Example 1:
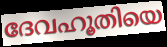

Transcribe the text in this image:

ദേവഹൂതിയെ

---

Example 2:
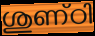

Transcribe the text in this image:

ശുണ്‌ഠി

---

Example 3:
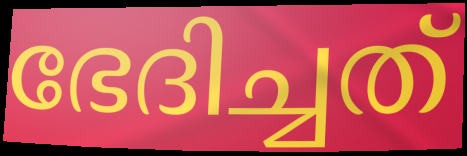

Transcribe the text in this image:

ഭേദിച്ചത്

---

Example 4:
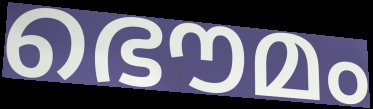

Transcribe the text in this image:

ഭൌമം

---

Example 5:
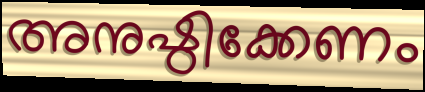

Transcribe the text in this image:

അനുഷ്ഠിക്കേണം